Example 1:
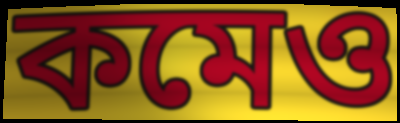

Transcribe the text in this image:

কমেও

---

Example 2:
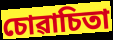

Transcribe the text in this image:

চোৱাচিতা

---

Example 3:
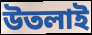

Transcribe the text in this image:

উতলাই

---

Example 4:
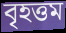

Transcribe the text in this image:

বৃহত্তম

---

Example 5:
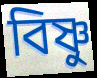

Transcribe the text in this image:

বিষ্ণু